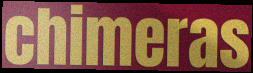
chimeras